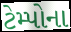
ટેમ્પોના